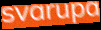
svarupa